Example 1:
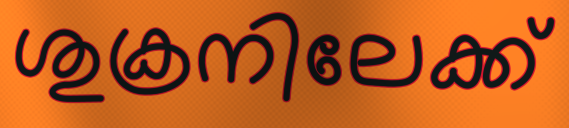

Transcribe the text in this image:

ശുക്രനിലേക്ക്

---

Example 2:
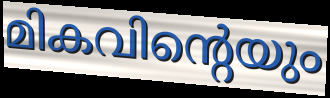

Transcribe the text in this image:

മികവിന്റെയും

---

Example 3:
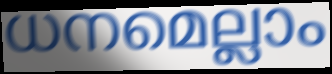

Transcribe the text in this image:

ധനമെല്ലാം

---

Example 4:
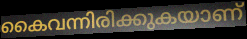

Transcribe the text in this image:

കൈവന്നിരിക്കുകയാണ്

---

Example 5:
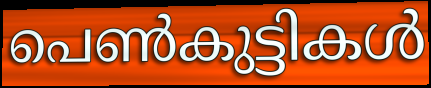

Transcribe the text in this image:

പെൺകുട്ടികൾ